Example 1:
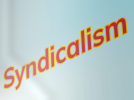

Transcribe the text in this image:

Syndicalism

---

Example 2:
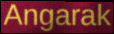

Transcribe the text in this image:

Angarak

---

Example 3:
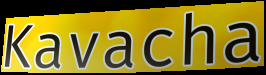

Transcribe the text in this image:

Kavacha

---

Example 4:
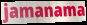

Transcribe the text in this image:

jamanama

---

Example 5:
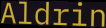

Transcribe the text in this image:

Aldrin